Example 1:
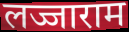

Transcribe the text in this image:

लज्जाराम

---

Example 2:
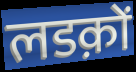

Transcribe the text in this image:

लडक़ों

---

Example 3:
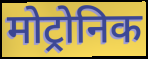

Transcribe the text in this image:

मोट्रोनिक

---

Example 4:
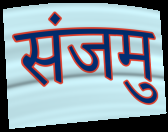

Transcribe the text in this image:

संजमु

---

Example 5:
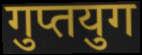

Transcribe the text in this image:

गुप्तयुग